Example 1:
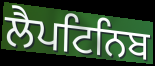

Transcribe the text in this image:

ਲੈਪਟਿਨਿਬ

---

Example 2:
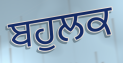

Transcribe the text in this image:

ਬਹੁਲਕ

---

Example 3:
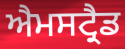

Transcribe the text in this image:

ਐਮਸਟ੍ਰੈਡ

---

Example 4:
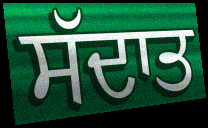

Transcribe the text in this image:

ਸੱਦਾਤ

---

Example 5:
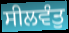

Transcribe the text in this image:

ਸੀਲਵੰਤੁ